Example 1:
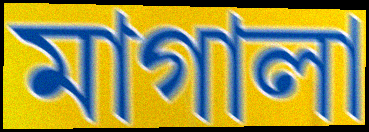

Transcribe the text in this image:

মাগালা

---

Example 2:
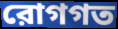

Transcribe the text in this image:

রোগগত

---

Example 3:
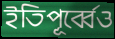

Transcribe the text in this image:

ইতিপূর্ব্বেও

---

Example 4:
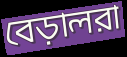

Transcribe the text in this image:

বেড়ালরা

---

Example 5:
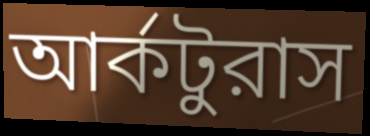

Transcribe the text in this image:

আর্কটুরাস